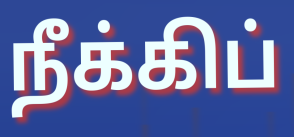
நீக்கிப்